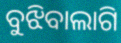
ବୁଝିବାଲାଗି